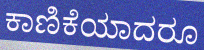
ಕಾಣಿಕೆಯಾದರೂ